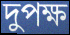
দুপক্ষ